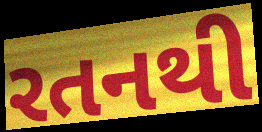
રતનથી